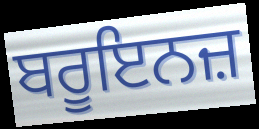
ਬਰੂਇਨਜ਼